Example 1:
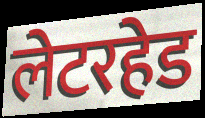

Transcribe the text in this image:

लेटरहेड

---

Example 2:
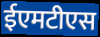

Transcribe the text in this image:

ईएमटीएस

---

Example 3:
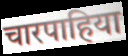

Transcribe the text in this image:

चारपाहिया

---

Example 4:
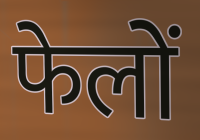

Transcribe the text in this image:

फेलों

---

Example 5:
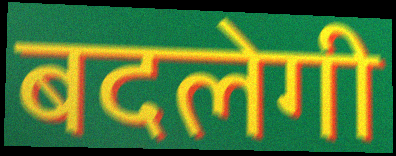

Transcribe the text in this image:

बदलेगी